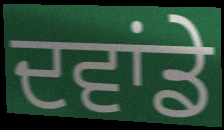
ਦਵਾਂਡੇ